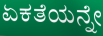
ಏಕತೆಯನ್ನೇ